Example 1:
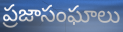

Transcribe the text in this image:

ప్రజాసంఘాలు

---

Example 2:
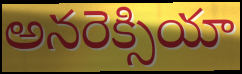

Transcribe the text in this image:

అనరెక్సియా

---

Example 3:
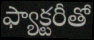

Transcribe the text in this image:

ఫ్యాక్టరీతో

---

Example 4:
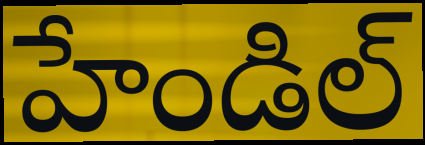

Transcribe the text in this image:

హేండిల్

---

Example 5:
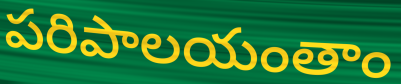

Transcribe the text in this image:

పరిపాలయంతాం